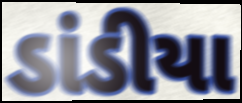
ડાંડીયા